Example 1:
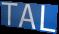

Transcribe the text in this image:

TAL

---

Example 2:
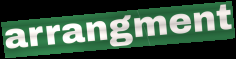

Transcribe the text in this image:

arrangment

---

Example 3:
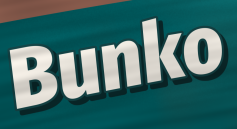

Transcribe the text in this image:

Bunko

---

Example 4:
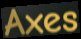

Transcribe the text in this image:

Axes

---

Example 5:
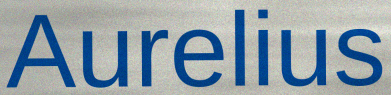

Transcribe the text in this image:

Aurelius